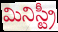
మినిస్ట్రీ